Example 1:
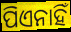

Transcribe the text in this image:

ପିଏନାହିଁ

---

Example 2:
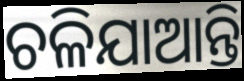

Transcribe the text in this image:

ଚଳିଯାଆନ୍ତି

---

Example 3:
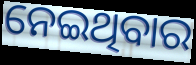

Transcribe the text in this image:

ନେଇଥିବାର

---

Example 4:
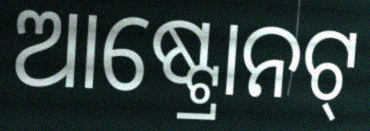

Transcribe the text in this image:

ଆଷ୍ଟ୍ରୋନଟ୍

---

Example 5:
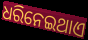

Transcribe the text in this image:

ଧରିନେଇଥାଏ